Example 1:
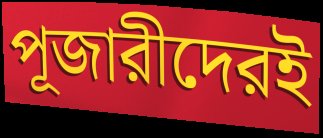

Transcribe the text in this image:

পূজারীদেরই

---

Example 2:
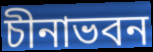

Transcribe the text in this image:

চীনাভবন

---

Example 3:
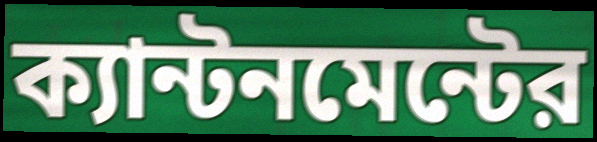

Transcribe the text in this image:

ক্যান্টনমেন্টের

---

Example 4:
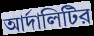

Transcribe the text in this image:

আর্দালিটির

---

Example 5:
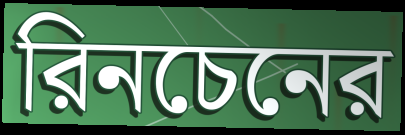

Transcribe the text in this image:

রিনচেনের